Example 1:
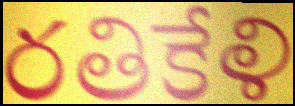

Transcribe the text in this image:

రతికేళి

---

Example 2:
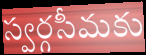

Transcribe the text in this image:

స్వర్గసీమకు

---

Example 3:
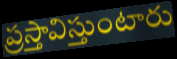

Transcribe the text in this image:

ప్రస్తావిస్తుంటారు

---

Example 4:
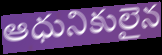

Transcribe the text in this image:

ఆధునికులైన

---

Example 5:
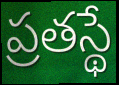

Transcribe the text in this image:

ప్రతస్థే